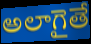
అలాగైతే